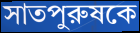
সাতপুরুষকে